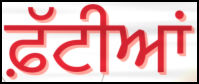
ਫ਼ੱਟੀਆਂ